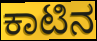
ಕಾಟಿನ